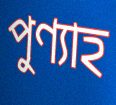
পুণ্যাহ